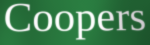
Coopers